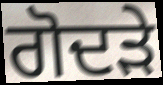
ਗੋਦੜੇ